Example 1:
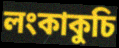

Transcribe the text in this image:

লংকাকুচি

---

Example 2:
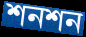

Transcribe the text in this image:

শনশন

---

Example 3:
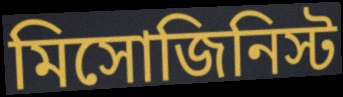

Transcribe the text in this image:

মিসোজিনিস্ট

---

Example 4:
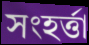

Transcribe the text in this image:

সংহর্ত্তা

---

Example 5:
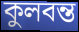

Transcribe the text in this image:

কুলবন্ত